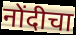
नोंदीचा